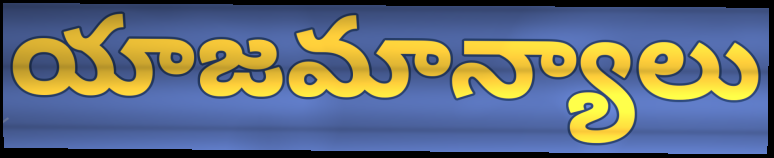
యాజమాన్యాలు